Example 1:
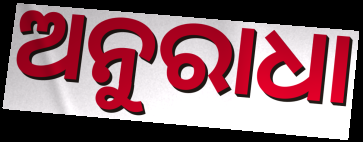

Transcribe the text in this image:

ଅନୁରାଧା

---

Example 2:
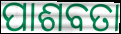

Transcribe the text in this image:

ପାଶବତା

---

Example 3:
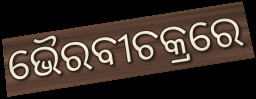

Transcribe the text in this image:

ଭୈରବୀଚକ୍ରରେ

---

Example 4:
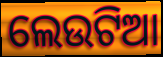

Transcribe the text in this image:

ଲେଉଟିଆ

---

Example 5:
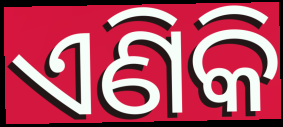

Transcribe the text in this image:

ଏଣିକି